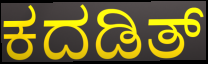
ಕದಡಿತ್